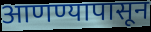
आणण्यापासून